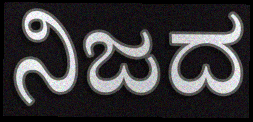
ನಿಜದ